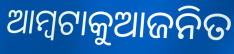
ଆମ୍ବଟାକୁଆଜନିତ